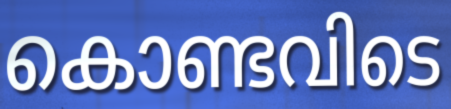
കൊണ്ടവിടെ